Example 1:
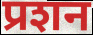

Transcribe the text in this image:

प्रशन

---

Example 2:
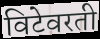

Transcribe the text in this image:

विटेवरती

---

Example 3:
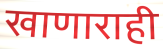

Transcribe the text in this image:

खाणाराही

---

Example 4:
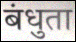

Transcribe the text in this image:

बंधुता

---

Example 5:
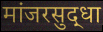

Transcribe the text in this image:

मांजरसुद्धा